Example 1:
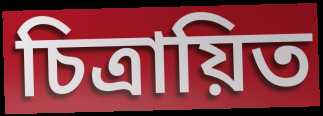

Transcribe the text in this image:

চিত্ৰায়িত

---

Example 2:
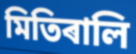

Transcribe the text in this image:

মিতিৰালি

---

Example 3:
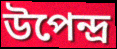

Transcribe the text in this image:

উপেন্দ্ৰ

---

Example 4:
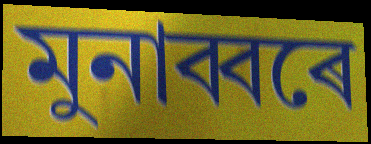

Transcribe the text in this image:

মুনাব্বৰে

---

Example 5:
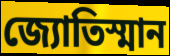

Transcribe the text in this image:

জ্যোতিস্মান